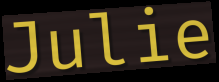
Julie